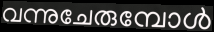
വന്നുചേരുമ്പോൾ